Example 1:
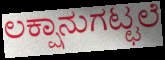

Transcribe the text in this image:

ಲಕ್ಷಾನುಗಟ್ಟಲೆ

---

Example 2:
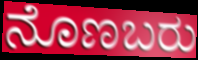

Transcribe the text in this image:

ನೊಣಬರು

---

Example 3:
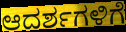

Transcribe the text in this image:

ಆದರ್ಶಗಳಿಗೆ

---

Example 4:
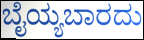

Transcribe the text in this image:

ಬೈಯ್ಯಬಾರದು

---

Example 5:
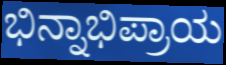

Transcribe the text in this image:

ಭಿನ್ನಾಭಿಪ್ರಾಯ